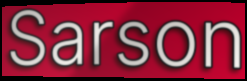
Sarson